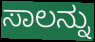
ಸಾಲನ್ನು